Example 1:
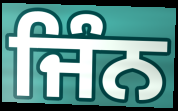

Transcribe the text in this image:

ਜਿੰਨ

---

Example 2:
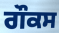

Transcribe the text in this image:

ਗੌਕਸ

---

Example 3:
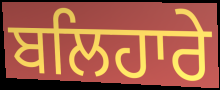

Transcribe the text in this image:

ਬਲਿਹਾਰੇ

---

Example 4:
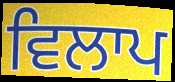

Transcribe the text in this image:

ਵਿਲਾਪ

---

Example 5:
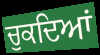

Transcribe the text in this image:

ਚੁਕਦਿਆਂ